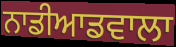
ਨਾਡੀਆਡਵਾਲਾ